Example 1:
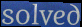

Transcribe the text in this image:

solved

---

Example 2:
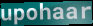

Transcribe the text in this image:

upohaar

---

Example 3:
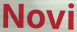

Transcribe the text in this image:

Novi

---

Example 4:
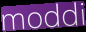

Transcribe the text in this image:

moddi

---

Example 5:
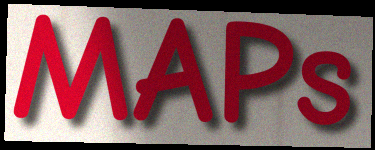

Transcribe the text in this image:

MAPs